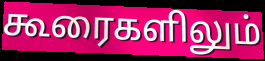
கூரைகளிலும்